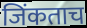
जिंकताच